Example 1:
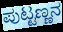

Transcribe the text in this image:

ಪುಟ್ಟಣ್ಣನ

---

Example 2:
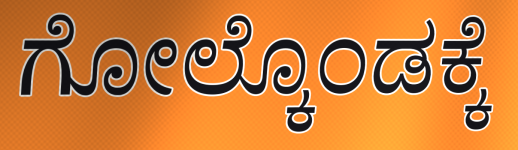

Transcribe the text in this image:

ಗೋಲ್ಕೊಂಡಕ್ಕೆ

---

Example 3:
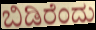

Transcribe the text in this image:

ಬಿಡಿರೆಂದು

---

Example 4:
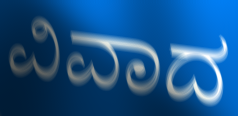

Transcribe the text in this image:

ವಿವಾದ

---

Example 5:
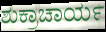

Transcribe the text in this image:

ಶುಕ್ರಾಚಾರ್ಯ